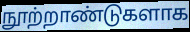
நூற்றாண்டுகளாக